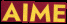
AIME